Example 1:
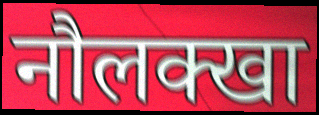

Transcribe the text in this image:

नौलक्खा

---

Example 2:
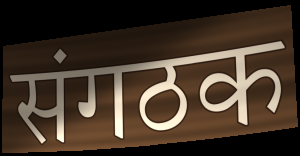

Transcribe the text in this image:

संगठक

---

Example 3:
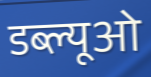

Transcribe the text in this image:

डब्ल्यूओ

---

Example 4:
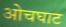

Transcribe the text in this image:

ओचघाट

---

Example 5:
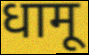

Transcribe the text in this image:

धामू